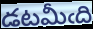
డటమీఁది